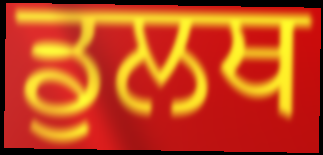
ਡੁਲਥ